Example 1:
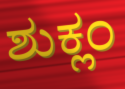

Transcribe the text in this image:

ಶುಕ್ಲಂ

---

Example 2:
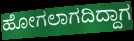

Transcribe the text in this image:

ಹೋಗಲಾಗದಿದ್ದಾಗ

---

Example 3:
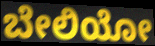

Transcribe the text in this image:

ಬೇಲಿಯೋ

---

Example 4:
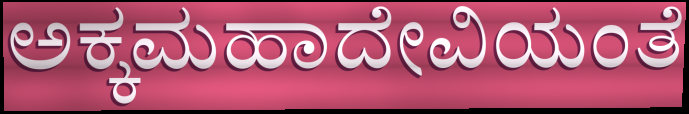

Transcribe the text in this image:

ಅಕ್ಕಮಹಾದೇವಿಯಂತೆ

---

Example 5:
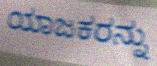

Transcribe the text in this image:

ಯಾಜಕರನ್ನು